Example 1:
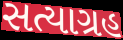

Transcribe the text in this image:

સત્યાગ્રહ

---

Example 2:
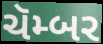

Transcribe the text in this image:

ચૅમ્બર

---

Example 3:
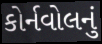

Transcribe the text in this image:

કોર્નવોલનું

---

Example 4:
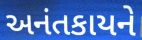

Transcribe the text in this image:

અનંતકાયને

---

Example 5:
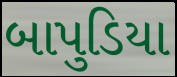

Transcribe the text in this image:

બાપુડિયા